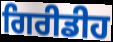
ਗਿਰੀਡੀਹ